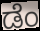
ಡೆಂ